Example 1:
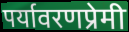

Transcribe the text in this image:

पर्यावरणप्रेमी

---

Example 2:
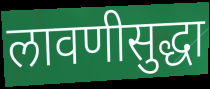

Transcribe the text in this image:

लावणीसुद्धा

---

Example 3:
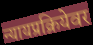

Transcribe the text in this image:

न्यायप्रक्रियेवर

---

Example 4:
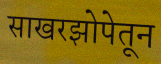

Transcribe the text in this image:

साखरझोपेतून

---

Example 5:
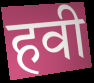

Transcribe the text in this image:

हवी